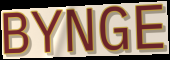
BYNGE